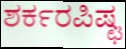
ಶರ್ಕರಪಿಷ್ಟ